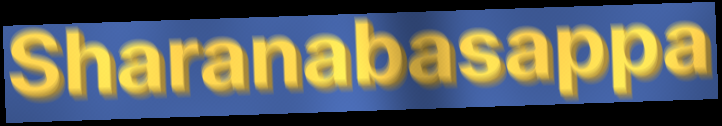
Sharanabasappa